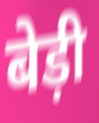
बेड़ी